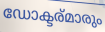
ഡോക്ടര്മാരും